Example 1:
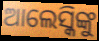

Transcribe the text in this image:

ଆଲେସ୍କିଙ୍କୁ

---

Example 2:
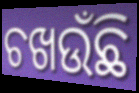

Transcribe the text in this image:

ଚଖଉଁଛି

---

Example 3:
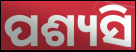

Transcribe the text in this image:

ପଶ୍ୟସି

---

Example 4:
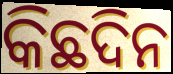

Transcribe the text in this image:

କିଛଦିନ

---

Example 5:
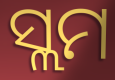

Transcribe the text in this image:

ସ୍ଲମ